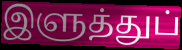
இளுத்துப்